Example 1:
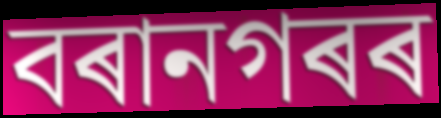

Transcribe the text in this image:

বৰানগৰৰ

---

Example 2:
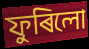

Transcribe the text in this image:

ফুৰিলো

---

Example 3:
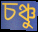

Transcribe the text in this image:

চঞ্চু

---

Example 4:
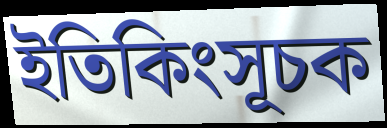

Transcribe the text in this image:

ইতিকিংসূচক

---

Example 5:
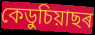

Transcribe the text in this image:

কেডুচিয়াছৰ